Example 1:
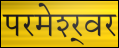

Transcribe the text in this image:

परमेश्र्वर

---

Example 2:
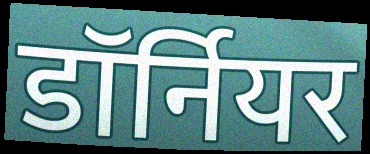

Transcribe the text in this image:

डॉर्नियर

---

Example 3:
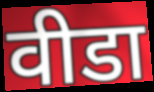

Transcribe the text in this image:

वीडा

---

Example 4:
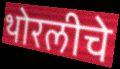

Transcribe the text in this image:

थोरलीचे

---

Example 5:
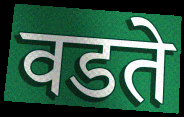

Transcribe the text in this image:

वडते